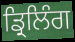
ਡ੍ਰਿਲਿੰਗ